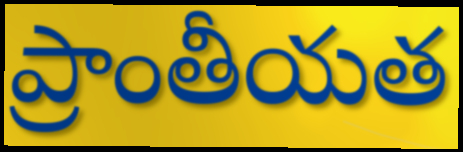
ప్రాంతీయత